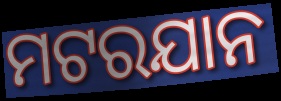
ମଟରଯାନ